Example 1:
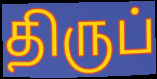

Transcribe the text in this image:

திருப்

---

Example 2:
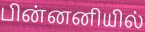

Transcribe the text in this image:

பின்னனியில்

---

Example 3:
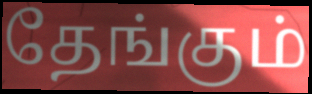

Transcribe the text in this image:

தேங்கும்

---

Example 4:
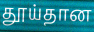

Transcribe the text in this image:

தூய்தான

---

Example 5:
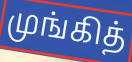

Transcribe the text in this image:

முங்கித்